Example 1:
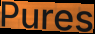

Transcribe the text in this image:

Pures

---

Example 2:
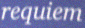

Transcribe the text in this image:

requiem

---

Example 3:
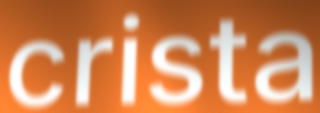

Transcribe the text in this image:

crista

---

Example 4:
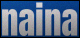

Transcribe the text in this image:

naina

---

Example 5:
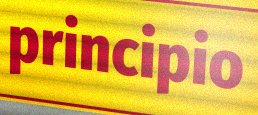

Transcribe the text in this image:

principio